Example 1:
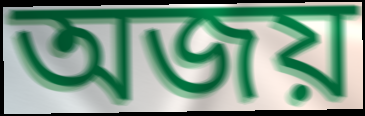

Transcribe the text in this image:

অজয়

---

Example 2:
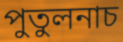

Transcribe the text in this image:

পুতুলনাচ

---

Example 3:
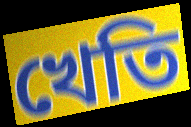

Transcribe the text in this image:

খেতি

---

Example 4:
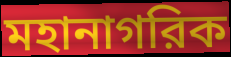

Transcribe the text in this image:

মহানাগরিক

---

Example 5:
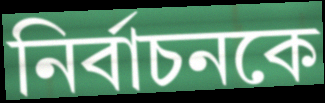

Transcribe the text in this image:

নির্বাচনকে